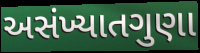
અસંખ્યાતગુણા